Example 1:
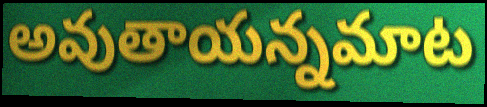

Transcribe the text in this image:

అవుతాయన్నమాట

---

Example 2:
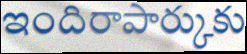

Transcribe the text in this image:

ఇందిరాపార్కుకు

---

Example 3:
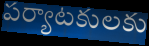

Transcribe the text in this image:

పర్యాటకులకు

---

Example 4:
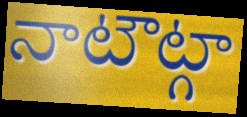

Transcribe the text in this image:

నాటౌట్గా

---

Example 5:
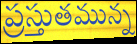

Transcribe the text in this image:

ప్రస్తుతమున్న